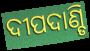
ଦୀପଦାଣ୍ଡି